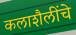
कलाशैलींचे